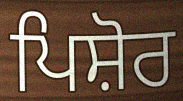
ਪਿਸ਼ੋਰ